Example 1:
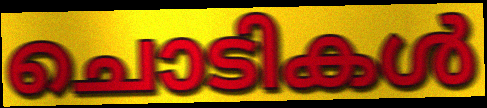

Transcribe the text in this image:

ചൊടികൾ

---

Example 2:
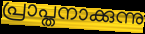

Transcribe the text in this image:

പ്രാപ്തനാക്കുന്നു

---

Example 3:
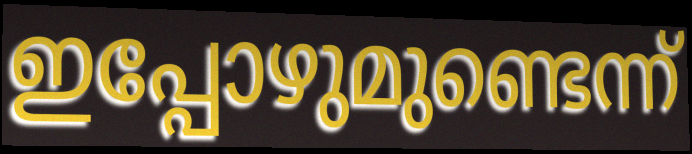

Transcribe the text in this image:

ഇപ്പോഴുമുണ്ടെന്ന്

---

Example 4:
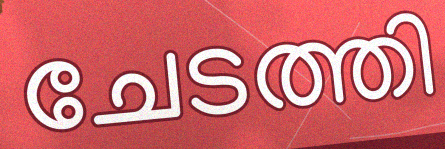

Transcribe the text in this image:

ചേടത്തി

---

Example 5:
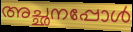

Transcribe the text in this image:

അച്ഛനപ്പോൾ